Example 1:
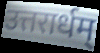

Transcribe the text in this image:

उत्तरार्धम्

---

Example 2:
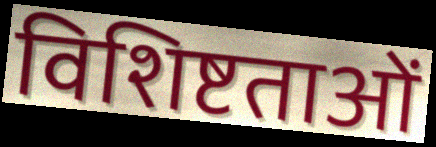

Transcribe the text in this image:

विशिष्टताओं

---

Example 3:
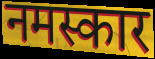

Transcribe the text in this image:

नमस्कार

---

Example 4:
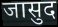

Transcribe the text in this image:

जासुद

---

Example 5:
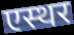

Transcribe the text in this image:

एस्थर